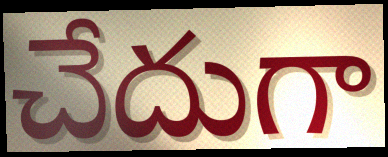
చేదుగా